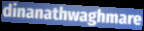
dinanathwaghmare